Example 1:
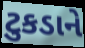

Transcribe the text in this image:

ટુકડાને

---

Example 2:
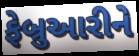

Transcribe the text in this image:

ફેબ્રુઆરીને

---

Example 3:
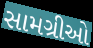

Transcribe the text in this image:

સામગ્રીઓ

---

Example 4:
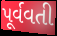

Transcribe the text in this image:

પૂર્વવતી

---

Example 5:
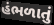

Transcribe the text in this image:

હંભળાતું